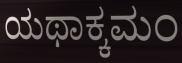
ಯಥಾಕ್ಕಮಂ